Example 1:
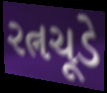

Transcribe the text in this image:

રત્નચૂડે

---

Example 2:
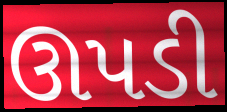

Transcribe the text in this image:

ઊપડી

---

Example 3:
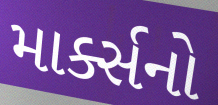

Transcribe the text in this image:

માર્ક્સનો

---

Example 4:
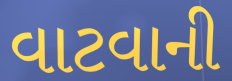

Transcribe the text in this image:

વાટવાની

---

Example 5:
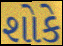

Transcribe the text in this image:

શોકે